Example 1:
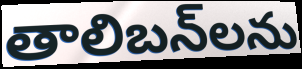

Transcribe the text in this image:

తాలిబన్‌లను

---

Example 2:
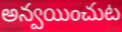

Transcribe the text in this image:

అన్వయించుట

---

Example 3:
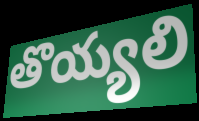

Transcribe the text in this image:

తొయ్యలి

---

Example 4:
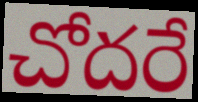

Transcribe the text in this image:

చోదరే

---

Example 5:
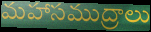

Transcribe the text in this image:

మహాసముద్రాలు